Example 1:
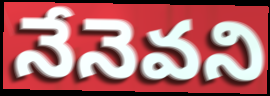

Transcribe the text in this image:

నేనెవని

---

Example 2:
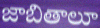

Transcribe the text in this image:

జాబితాలూ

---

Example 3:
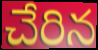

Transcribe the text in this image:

చేరిన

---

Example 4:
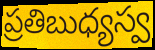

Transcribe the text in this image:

ప్రతిబుధ్యస్వ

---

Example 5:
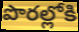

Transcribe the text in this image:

పొరల్లోకి